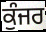
ਕੁੰਜਰ